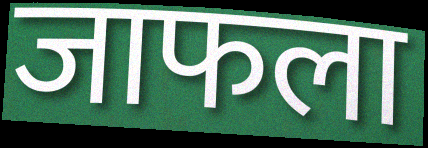
जाफला